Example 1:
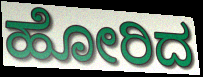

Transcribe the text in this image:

ಹೋರಿದ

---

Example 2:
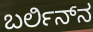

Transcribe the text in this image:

ಬರ್ಲಿನ್‍ನ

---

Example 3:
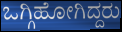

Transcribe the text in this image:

ಒಗ್ಗಿಹೋಗಿದ್ದರು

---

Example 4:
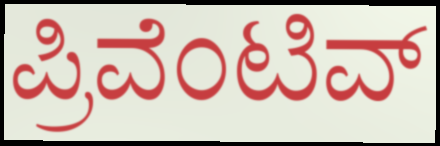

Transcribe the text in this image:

ಪ್ರಿವೆಂಟಿವ್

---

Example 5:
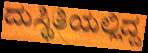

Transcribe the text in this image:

ದುಸ್ಥಿತಿಯಲ್ಲಿದ್ದ